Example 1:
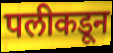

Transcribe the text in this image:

पलीकडून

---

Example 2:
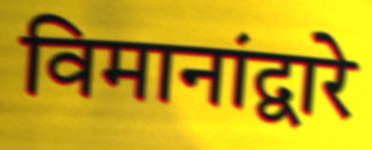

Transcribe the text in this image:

विमानांद्वारे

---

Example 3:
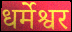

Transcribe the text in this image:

धर्मेश्वर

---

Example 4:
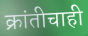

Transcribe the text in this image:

क्रांतीचाही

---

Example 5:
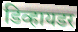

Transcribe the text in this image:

डिव्हायडर